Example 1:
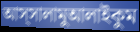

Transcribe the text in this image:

আস্সালামুআলাইকুম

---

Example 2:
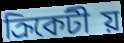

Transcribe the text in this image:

ক্রিকেটীয়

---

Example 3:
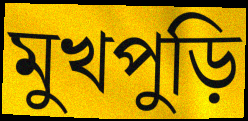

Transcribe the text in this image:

মুখপুড়ি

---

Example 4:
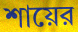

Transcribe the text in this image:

শায়ের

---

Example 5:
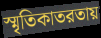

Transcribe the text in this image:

স্মৃতিকাতরতায়